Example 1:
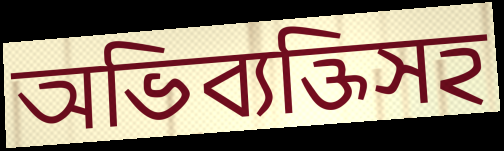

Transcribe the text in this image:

অভিব্যক্তিসহ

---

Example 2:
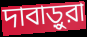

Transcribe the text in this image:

দাবাড়ুরা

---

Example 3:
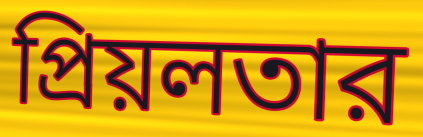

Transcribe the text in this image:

প্রিয়লতার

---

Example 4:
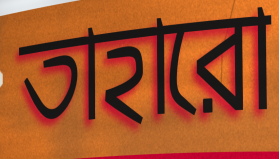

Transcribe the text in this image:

তাহারো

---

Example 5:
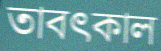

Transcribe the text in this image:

তাবৎকাল